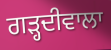
ਗਡ਼੍ਹਦੀਵਾਲਾ